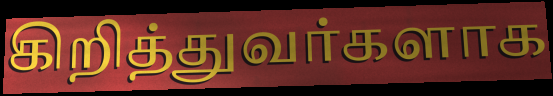
கிறித்துவர்களாக